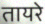
तायरे